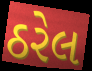
ઠરેલ